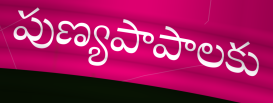
పుణ్యపాపాలకు